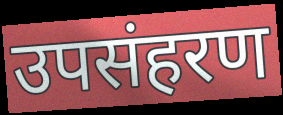
उपसंहरण